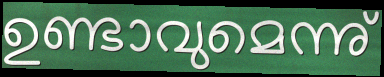
ഉണ്ടാവുമെന്നു്